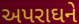
અપરાઘને